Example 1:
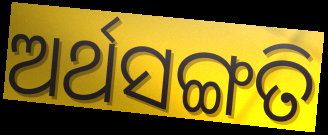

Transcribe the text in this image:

ଅର୍ଥସଙ୍ଗତି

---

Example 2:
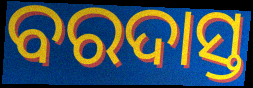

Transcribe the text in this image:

ବରଦାସ୍ତ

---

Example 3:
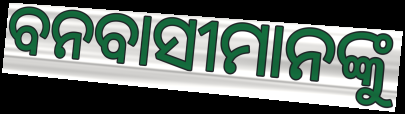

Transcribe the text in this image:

ବନବାସୀମାନଙ୍କୁ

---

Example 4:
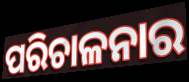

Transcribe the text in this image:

ପରିଚାଳନାର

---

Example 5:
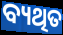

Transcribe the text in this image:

ବ୍ୟଥିତ